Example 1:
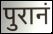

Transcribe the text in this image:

पुरानं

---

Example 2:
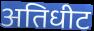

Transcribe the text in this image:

अतिधीट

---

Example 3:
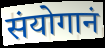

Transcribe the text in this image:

संयोगानं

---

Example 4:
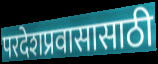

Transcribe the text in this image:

परदेशप्रवासासाठी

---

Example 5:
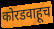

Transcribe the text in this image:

कोरडवाहूच